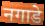
नगाडे